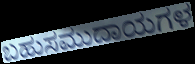
ಬಹುಸಮುದಾಯಗಳ